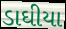
ડાઘીયા